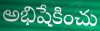
అభిషేకించు